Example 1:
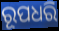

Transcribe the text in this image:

ରୂପଧରି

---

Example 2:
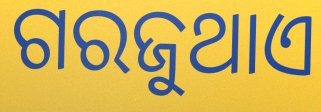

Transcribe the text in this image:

ଗରଜୁଥାଏ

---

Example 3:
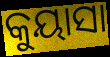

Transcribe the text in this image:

କୁୟାସା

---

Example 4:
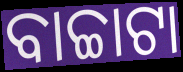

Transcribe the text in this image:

ବାଚ୍ଚାଟା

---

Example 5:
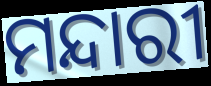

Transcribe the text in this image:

ମନ୍ଦାରୀ